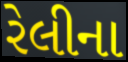
રેલીના